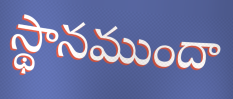
స్థానముందా